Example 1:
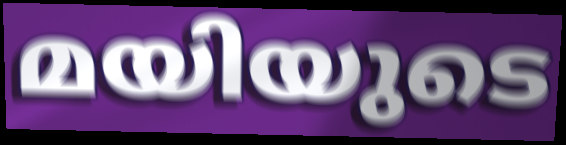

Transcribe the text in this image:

മയിയുടെ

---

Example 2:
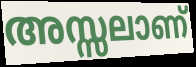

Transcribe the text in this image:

അസ്സലാണ്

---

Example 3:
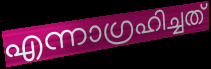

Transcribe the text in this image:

എന്നാഗ്രഹിച്ചത്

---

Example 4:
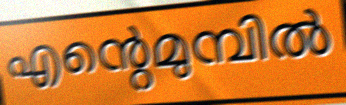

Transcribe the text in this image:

എന്റെമുമ്പിൽ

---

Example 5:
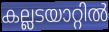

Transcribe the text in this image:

കല്ലടയാറ്റിൽ